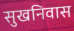
सुखनिवास